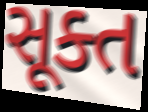
સૂક્ત